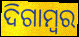
ଦିଗାମ୍ଵର